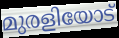
മുരളിയോട്